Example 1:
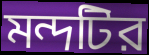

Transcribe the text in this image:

মন্দটির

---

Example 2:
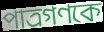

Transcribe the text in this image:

পাত্রগণকে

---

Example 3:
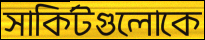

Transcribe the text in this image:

সার্কিটগুলোকে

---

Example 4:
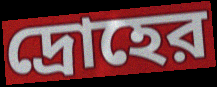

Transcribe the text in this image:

দ্রোহের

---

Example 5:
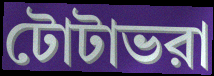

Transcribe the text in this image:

টোটাভরা